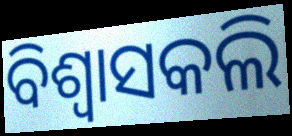
ବିଶ୍ଵାସକଲି